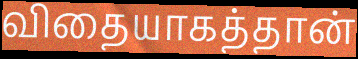
விதையாகத்தான்